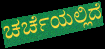
ಚರ್ಚೆಯಲ್ಲಿದೆ